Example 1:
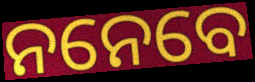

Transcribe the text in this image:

ନନେବେ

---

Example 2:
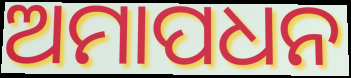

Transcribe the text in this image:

ଅମାପଧନ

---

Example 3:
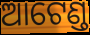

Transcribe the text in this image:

ଆଟେଣ୍ଡ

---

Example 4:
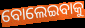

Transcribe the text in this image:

ବୋଲେଇବାକୁ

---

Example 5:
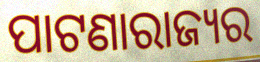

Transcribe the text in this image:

ପାଟଣାରାଜ୍ୟର